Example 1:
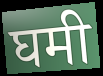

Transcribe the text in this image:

घमी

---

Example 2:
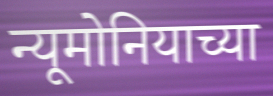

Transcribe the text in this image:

न्यूमोनियाच्या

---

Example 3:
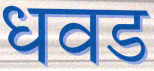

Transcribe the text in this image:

धवड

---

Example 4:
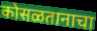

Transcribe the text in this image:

कोसळतानाचा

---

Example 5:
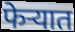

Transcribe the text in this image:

फेऱ्यात